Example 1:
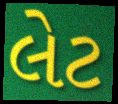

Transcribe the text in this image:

લેટ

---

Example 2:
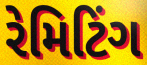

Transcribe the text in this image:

રેમિટિંગ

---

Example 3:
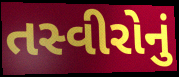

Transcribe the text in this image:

તસ્વીરોનું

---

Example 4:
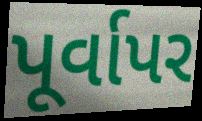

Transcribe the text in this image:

પૂર્વાપર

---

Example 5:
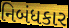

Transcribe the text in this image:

નિબંધકાર